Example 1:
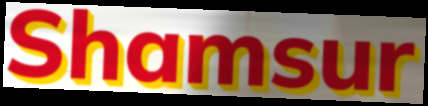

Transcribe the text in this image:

Shamsur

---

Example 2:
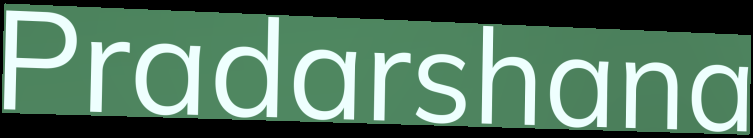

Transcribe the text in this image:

Pradarshana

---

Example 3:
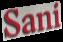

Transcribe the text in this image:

Sani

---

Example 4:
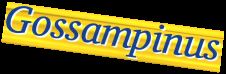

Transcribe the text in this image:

Gossampinus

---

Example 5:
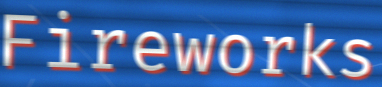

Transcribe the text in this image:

Fireworks